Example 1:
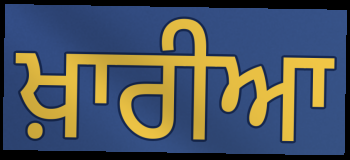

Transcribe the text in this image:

ਖ਼ਾਰੀਆ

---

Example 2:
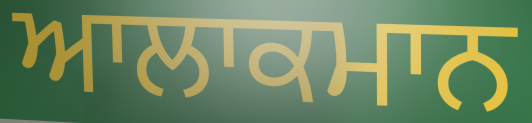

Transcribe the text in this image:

ਆਲਾਕਮਾਨ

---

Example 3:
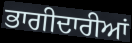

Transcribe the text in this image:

ਭਾਗੀਦਾਰੀਆਂ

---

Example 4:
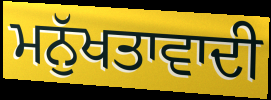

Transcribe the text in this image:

ਮਨੁੱਖਤਾਵਾਦੀ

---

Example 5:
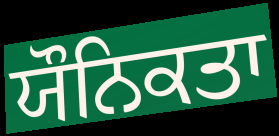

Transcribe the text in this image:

ਯੌਨਿਕਤਾ